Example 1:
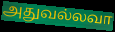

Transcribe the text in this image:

அதுவல்லவா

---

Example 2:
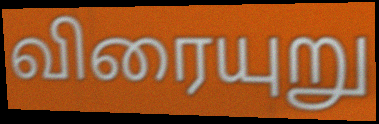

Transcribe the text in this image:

விரையுறு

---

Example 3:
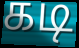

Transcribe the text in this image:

கடி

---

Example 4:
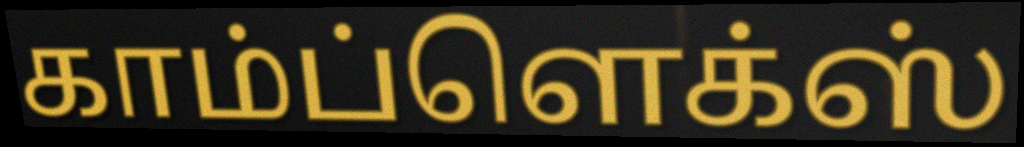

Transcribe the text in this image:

காம்ப்ளெக்ஸ்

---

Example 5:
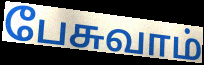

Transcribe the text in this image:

பேசுவாம்